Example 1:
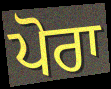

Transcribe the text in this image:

ਪੋਰਾ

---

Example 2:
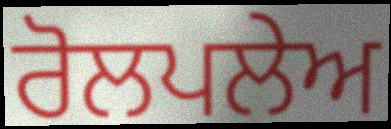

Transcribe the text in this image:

ਰੋਲਪਲੇਅ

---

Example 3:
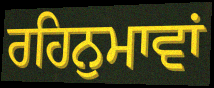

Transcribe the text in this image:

ਰਹਿਨੁਮਾਵਾਂ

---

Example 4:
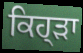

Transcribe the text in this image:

ਕਿਹ੍ੜਾ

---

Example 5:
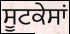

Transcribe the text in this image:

ਸੂਟਕੇਸਾਂ